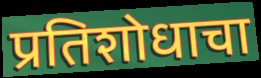
प्रतिशोधाचा